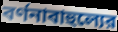
বর্ণনাবাহুল্যের